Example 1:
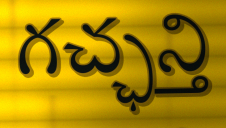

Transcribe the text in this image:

గచ్ఛన్తి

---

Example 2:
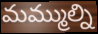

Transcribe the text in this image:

మమ్ముల్ని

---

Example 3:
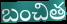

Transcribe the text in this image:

బంచిత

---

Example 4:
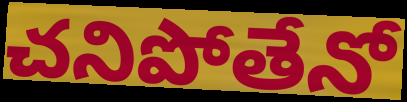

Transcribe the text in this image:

చనిపోతేనో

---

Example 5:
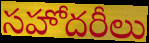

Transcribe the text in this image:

సహోదరీలు